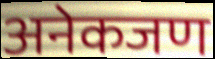
अनेकजण